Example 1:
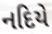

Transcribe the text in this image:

નદિયે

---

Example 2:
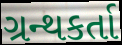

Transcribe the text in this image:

ગ્રન્થકર્તા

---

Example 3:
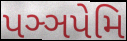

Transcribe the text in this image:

પઞ્ઞપેમિ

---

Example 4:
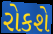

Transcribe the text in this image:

રોકશે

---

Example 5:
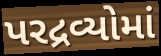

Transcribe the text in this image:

પરદ્રવ્યોમાં